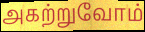
அகற்றுவோம்